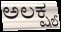
ಅಲಕ್ಷ್ಯ